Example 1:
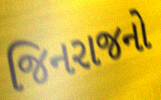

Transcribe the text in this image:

જિનરાજનો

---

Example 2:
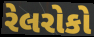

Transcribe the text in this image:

રેલરોકો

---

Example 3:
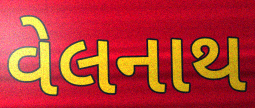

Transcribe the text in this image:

વેલનાથ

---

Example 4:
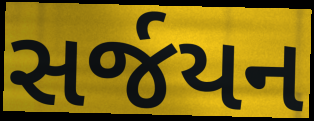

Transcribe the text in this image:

સર્જયન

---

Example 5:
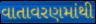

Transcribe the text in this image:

વાતાવરણમાંથી